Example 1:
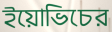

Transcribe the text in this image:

ইয়োভিচের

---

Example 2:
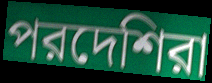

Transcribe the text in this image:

পরদেশিরা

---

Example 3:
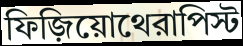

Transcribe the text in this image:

ফিজ়িয়োথেরাপিস্ট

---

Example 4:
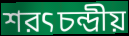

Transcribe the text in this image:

শরৎচন্দ্রীয়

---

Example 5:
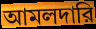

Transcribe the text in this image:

আমলদারি